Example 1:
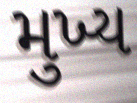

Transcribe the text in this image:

મુખ્ય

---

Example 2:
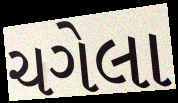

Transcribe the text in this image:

ચગેલા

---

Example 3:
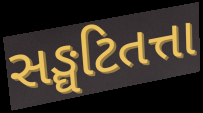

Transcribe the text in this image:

સઙ્ઘટિતત્તા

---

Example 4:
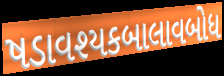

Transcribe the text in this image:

ષડાવશ્યકબાલાવબોધ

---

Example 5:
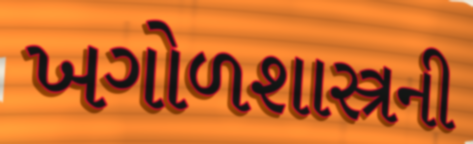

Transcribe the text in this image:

ખગોળશાસ્ત્રની